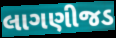
લાગણીજડ